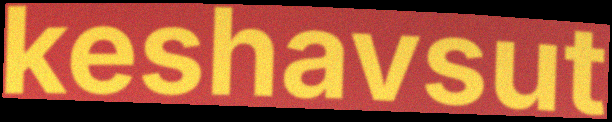
keshavsut